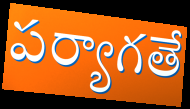
పర్యాగతే